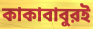
কাকাবাবুরই